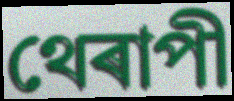
থেৰাপী